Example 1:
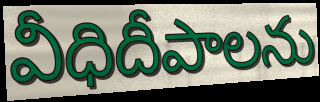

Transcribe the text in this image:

వీధిదీపాలను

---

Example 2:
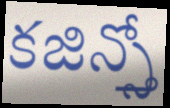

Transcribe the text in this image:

కజిన్స్తో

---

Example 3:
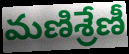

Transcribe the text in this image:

మణిశ్రేణీ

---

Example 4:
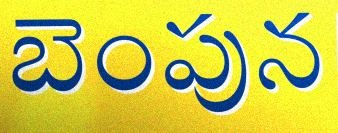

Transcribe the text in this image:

బెంపున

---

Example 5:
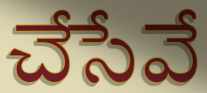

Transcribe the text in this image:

చేసేవే